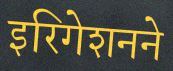
इरिगेशनने